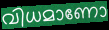
വിധമാണോ